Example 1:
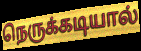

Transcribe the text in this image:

நெருக்கடியால்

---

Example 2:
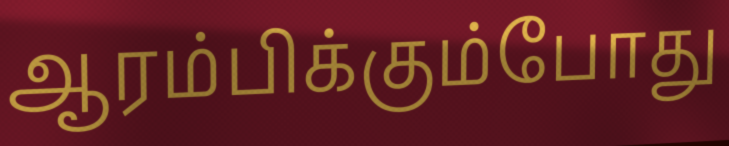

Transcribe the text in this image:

ஆரம்பிக்கும்போது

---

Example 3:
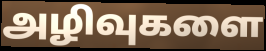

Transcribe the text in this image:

அழிவுகளை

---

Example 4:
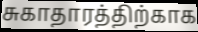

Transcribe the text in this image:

சுகாதாரத்திற்காக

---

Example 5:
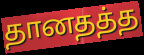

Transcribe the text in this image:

தானதத்த